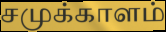
சமுக்காளம்